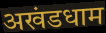
अखंडधाम